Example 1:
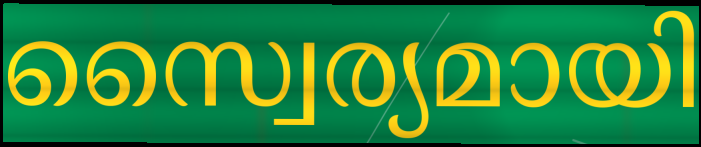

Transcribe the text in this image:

സ്വൈര്യമായി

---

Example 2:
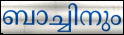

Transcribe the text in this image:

ബാച്ചിനും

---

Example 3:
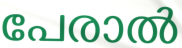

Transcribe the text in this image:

പേരാൽ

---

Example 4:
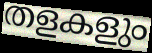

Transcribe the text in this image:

തളകളും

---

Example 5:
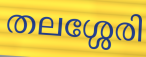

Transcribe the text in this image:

തലശ്ശേരി